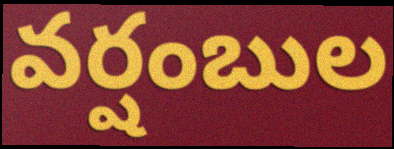
వర్షంబుల